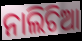
ନାଲିଚିଆ